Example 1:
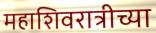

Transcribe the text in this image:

महाशिवरात्रीच्या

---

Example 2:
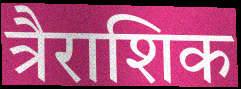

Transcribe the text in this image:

त्रैराशिक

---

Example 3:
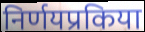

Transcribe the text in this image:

निर्णयप्रकिया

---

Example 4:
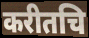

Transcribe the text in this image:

करीतचि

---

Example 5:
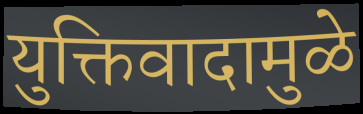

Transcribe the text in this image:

युक्तिवादामुळे